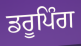
ਡਰੂਪਿੰਗ